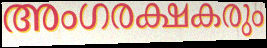
അംഗരക്ഷകരും